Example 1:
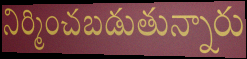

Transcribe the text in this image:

నిర్మించబడుతున్నారు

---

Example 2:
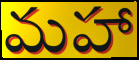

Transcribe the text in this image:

మహా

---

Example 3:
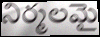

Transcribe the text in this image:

నిర్మలమై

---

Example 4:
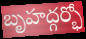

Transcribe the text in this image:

బృహద్గర్భో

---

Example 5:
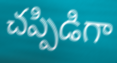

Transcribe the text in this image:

చప్పిడిగా